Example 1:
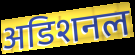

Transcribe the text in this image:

अडिशनल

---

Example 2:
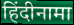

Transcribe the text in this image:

हिंदीनामा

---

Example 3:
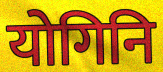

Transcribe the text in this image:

योगिनि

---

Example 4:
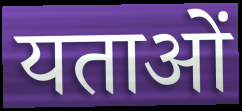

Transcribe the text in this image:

यताओं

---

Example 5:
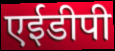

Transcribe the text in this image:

एईडीपी